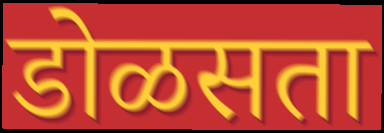
डोळसता